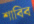
শাবিব